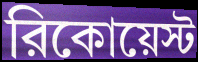
রিকোয়েস্ট